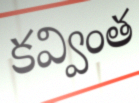
కవ్వింత